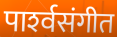
पार्श्‍वसंगीत